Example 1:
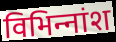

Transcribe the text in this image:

विभिन्नांश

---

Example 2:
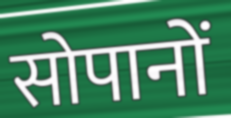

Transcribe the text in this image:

सोपानों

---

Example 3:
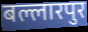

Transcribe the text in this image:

बल्लारपुर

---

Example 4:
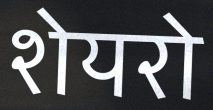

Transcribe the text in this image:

शेयरो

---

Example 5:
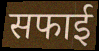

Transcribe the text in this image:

सफाई